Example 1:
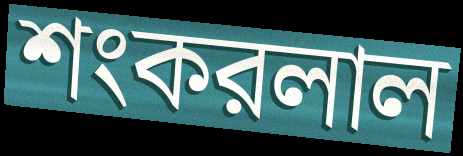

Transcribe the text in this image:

শংকরলাল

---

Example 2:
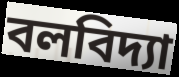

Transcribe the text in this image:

বলবিদ্যা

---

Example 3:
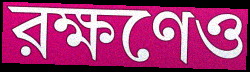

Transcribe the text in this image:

রক্ষণেও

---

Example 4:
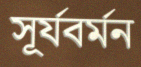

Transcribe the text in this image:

সূর্যবর্মন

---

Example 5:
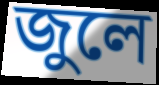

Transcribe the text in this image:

জুলে